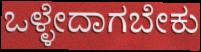
ಒಳ್ಳೇದಾಗಬೇಕು